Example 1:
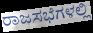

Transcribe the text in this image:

ರಾಜಸಭೆಗಳಲ್ಲಿ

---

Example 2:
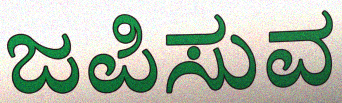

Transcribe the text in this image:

ಜಪಿಸುವ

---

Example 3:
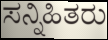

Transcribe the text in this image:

ಸನ್ನಿಹಿತರು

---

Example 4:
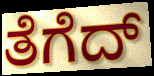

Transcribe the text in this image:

ತೆಗೆದ್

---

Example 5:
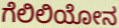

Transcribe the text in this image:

ಗೆಲಿಲಿಯೋನ